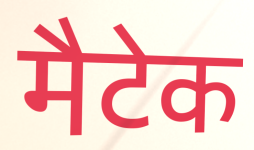
मैटेक